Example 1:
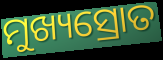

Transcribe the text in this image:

ମୁଖ୍ୟସ୍ରୋତ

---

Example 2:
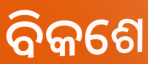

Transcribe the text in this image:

ବିକଶେ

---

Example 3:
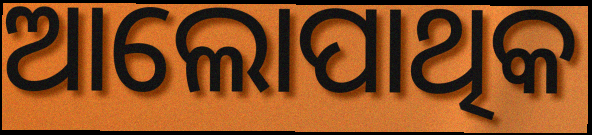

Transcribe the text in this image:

ଆଲୋପାଥିକ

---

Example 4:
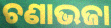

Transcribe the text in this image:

ଚଣାଭଜା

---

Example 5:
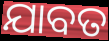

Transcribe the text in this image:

ଯାବତ